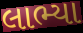
લાભ્યા